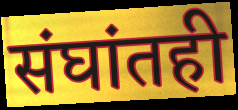
संघांतही